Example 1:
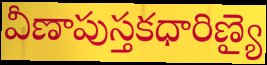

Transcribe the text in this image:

వీణాపుస్తకధారిణ్యై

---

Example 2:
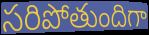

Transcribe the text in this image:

సరిపోతుందిగా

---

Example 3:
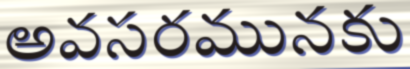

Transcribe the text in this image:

అవసరమునకు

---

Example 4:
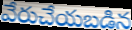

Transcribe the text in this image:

వేరుచేయబడిన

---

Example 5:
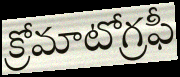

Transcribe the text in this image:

క్రోమాటోగ్రఫీ